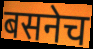
बसनेच